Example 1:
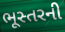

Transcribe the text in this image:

ભૂસ્તરની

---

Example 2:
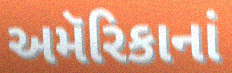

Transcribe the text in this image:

અમૅરિકાનાં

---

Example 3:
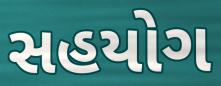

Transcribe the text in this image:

સહયોગ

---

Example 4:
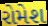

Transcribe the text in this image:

રોમેશ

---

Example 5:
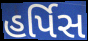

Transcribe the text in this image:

હર્પિસ